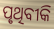
ପୃଥିବୀକି